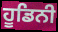
ਹੂਡਿਨੀ